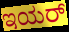
ಇಯರ್